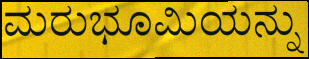
ಮರುಭೂಮಿಯನ್ನು